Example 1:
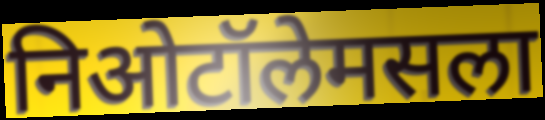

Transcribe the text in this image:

निओटॉलेमसला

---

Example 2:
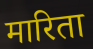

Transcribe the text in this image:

मारिता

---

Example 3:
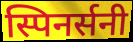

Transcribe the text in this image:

स्पिनर्सनी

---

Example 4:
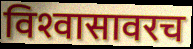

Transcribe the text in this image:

विश्वासावरच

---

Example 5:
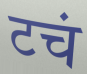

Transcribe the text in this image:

टचं